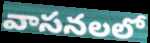
వాసనలలో